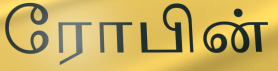
ரோபின்